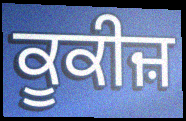
ਕੂਕੀਜ਼